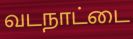
வடநாட்டை